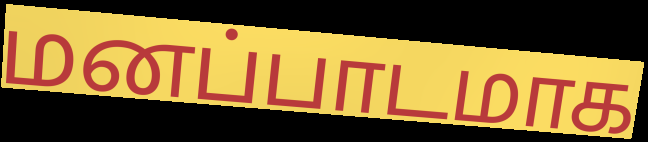
மனப்பாடமாக